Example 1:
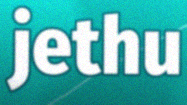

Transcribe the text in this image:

jethu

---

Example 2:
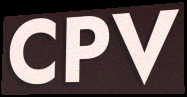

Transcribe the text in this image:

CPV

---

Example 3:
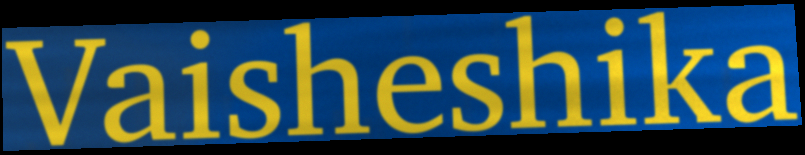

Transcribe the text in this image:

Vaisheshika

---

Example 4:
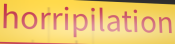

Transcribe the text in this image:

horripilation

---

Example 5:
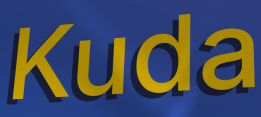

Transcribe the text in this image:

Kuda